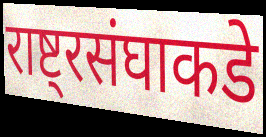
राष्ट्रसंघाकडे